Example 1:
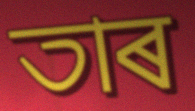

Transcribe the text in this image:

তাৰ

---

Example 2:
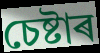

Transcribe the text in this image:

চেষ্টাৰ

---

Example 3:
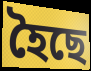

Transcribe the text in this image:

হৈছে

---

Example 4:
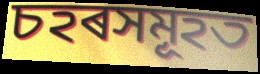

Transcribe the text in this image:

চহৰসমূহত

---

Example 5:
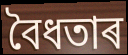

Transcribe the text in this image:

বৈধতাৰ